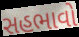
સહભાવો